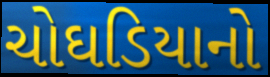
ચોઘડિયાનો